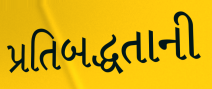
પ્રતિબદ્ધતાની